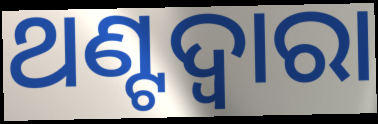
ଥଣ୍ଟଦ୍ୱାରା